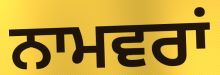
ਨਾਮਵਰਾਂ